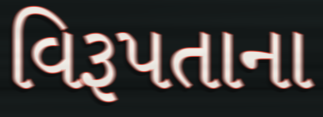
વિરૂપતાના